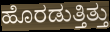
ಹೊರಡುತ್ತಿತ್ತು